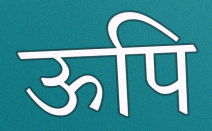
ऊपि